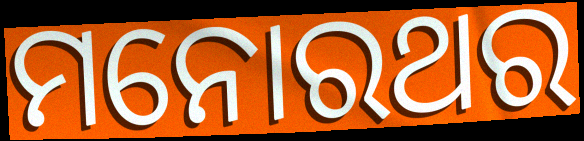
ମନୋରଥର